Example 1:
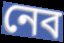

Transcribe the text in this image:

নেব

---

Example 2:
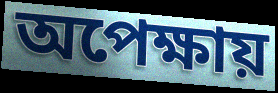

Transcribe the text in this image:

অপেক্ষায়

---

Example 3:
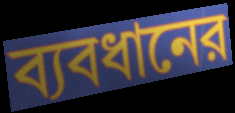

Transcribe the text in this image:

ব্যবধানের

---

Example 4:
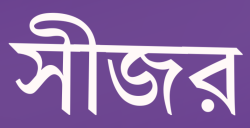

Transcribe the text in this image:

সীজর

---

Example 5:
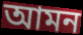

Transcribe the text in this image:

আমন